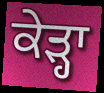
ਕੇੜ੍ਹਾ